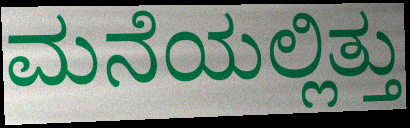
ಮನೆಯಲ್ಲಿತ್ತು